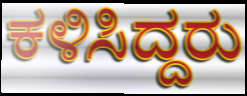
ಕಳಿಸಿದ್ದರು